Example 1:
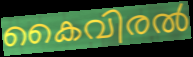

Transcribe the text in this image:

കൈവിരൽ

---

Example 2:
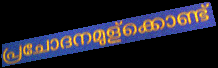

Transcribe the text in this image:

പ്രചോദനമുള്ക്കൊണ്ട്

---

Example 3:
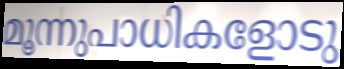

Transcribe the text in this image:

മൂന്നുപാധികളോടു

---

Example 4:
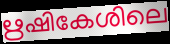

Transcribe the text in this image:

ഋഷികേശിലെ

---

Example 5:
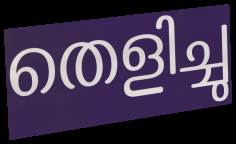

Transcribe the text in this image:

തെളിച്ചു